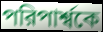
পরিপার্শ্বকে